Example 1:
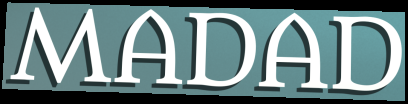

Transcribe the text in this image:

MADAD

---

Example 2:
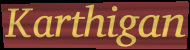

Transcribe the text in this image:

Karthigan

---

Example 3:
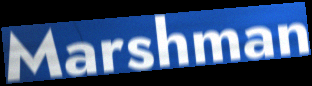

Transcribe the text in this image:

Marshman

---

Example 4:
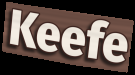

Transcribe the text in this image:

Keefe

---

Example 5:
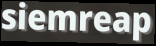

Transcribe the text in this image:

siemreap